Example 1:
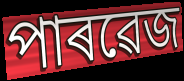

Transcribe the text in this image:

পাৰৱেজ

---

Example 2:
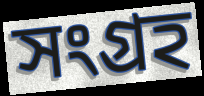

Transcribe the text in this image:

সংগ্ৰহ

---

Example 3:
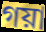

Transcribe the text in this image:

গয়া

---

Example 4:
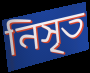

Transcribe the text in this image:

নিসৃত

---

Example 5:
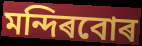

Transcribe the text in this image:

মন্দিৰবোৰ